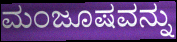
ಮಂಜೂಷವನ್ನು